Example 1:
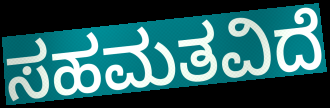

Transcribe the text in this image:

ಸಹಮತವಿದೆ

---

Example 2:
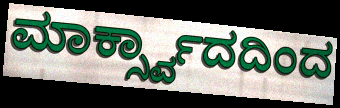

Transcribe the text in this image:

ಮಾರ್ಕ್ಸ್ವಾದದಿಂದ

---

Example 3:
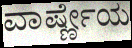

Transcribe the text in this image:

ವಾರ್ಷ್ಣೇಯ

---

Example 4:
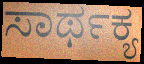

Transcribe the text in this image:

ಸಾರ್ಥಕ್ಯ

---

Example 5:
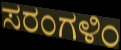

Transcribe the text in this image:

ಸರಂಗಳಿಂ